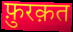
फ़ुरक़त